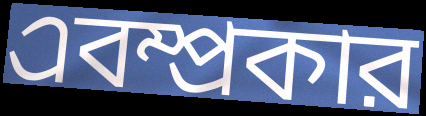
এবম্প্রকার